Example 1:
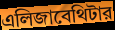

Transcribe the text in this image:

এলিজাবেথিটার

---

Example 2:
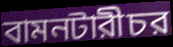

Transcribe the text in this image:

বামনটারীচর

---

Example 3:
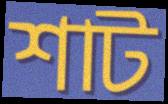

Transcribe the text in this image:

শাট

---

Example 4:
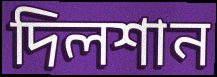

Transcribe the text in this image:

দিলশান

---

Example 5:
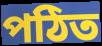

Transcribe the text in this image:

পঠিত